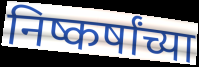
निष्कर्षांच्या